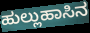
ಹುಲ್ಲುಹಾಸಿನ